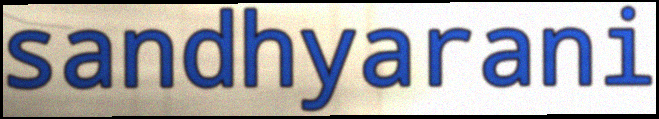
sandhyarani